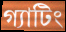
গ্যাটিং